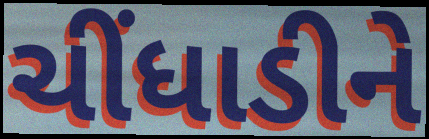
ચીંધાડીને